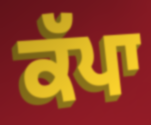
ਕੱਪਾ